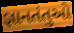
જ્ઞાનતંતુઓ